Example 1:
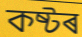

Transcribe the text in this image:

কষ্টৰ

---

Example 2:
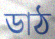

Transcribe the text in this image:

ডাঠ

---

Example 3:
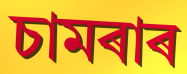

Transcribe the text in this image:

চামৰাৰ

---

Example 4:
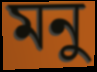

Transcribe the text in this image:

মনু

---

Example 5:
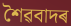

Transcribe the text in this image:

শৈৱবাদৰ